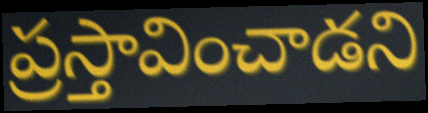
ప్రస్తావించాడని